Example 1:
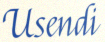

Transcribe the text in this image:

Usendi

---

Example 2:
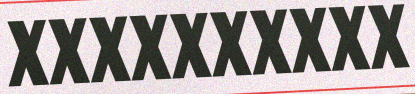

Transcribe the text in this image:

xxxxxxxxxx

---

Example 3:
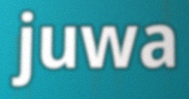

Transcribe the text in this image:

juwa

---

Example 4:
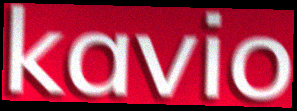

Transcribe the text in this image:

kavio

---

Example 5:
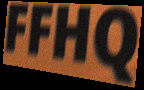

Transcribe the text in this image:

FFHQ